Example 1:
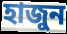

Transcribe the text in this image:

হাজুন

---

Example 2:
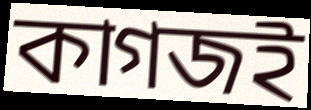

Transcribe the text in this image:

কাগজই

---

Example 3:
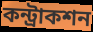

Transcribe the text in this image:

কন্ট্রাকশন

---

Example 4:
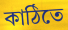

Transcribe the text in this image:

কাঠিতে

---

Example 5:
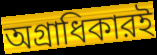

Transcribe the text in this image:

অগ্রাধিকারই